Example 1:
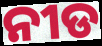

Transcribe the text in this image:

ନୀଡ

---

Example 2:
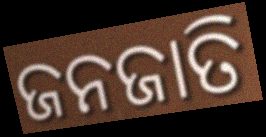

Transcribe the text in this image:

ଜନଜାତି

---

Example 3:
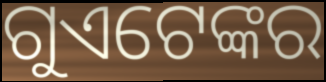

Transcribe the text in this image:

ଗୁଏଟେଙ୍କର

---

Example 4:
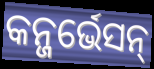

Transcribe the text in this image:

କନ୍ଜର୍ଭେସନ୍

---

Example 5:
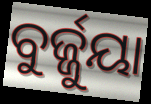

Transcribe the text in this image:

ବୁର୍ଜ୍ଜୁୟା